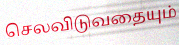
செலவிடுவதையும்